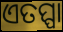
ଏତପ୍ପା